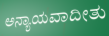
ಅನ್ಯಾಯವಾದೀತು